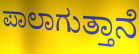
ಪಾಲಾಗುತ್ತಾನೆ